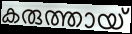
കരുത്തായ്